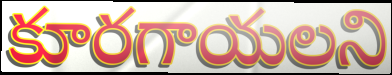
కూరగాయలని